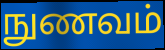
நுணவம்